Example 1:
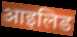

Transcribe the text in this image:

आइलिड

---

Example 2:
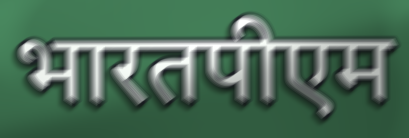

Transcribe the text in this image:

भारतपीएम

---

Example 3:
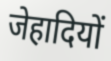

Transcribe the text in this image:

जेहादियों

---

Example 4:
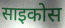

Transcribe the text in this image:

साइकोस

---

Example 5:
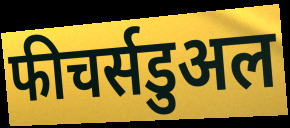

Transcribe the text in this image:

फीचर्सडुअल